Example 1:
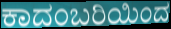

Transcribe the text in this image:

ಕಾದಂಬರಿಯಿಂದ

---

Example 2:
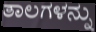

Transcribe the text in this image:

ತಾಲಗಳನ್ನು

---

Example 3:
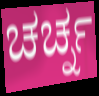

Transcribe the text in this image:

ಚರ್ಚ್ನ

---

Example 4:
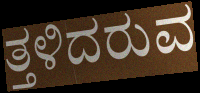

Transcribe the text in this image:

ತ್ತಳಿದರುವ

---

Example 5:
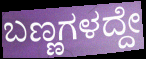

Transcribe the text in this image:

ಬಣ್ಣಗಳದ್ದೇ